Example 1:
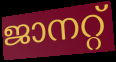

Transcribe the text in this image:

ജാനറ്റ്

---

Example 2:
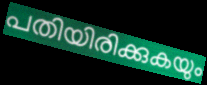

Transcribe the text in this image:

പതിയിരിക്കുകയും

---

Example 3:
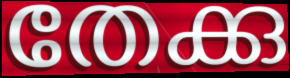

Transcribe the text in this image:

തേക്കു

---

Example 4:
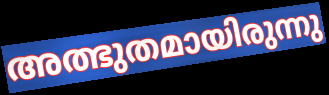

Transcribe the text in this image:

അത്ഭുതമായിരുന്നു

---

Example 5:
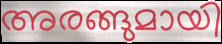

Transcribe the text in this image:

അരങ്ങുമായി